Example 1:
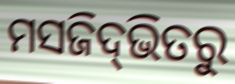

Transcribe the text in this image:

ମସଜିଦ୍‌ଭିତରୁ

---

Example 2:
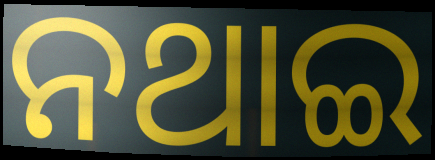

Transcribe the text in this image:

ନଥାଇ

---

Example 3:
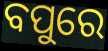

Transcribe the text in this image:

ବପୁରେ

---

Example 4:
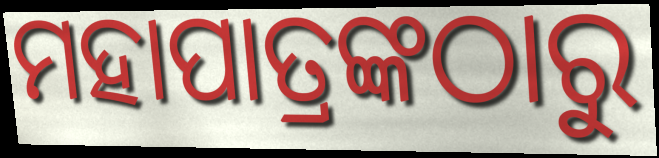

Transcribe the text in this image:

ମହାପାତ୍ରଙ୍କଠାରୁ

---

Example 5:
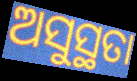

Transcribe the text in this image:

ଅସୁସ୍ଥତା